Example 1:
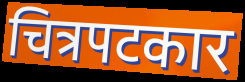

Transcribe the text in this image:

चित्रपटकार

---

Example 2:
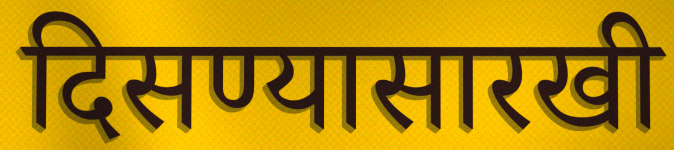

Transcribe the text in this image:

दिसण्यासारखी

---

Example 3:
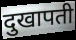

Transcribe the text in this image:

दुखापती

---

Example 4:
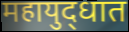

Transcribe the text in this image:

महायुद्धात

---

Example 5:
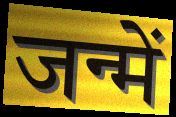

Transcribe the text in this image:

जन्में